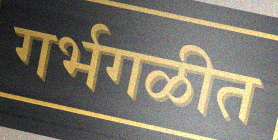
गर्भगळीत